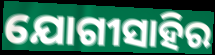
ଯୋଗୀସାହିର